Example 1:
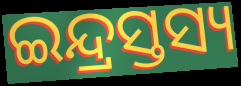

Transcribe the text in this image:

ଇନ୍ଦ୍ରସ୍ତସ୍ୟ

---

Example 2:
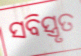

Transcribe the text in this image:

ସବିସ୍ତ୍ରୃତ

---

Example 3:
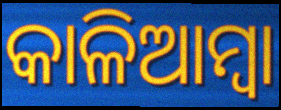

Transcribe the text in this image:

କାଳିଆମ୍ବା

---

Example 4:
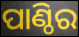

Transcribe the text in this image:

ପାଣ୍ଠିର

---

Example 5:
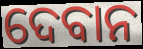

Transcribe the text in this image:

ଦେବାନ